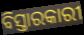
ବିସ୍ତାରକାରୀ